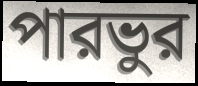
পারভুর